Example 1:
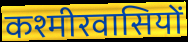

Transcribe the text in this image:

कश्मीरवासियों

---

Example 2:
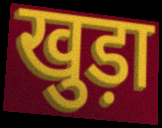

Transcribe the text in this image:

खुड़ा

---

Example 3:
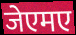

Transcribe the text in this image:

जेएमए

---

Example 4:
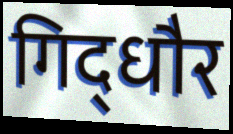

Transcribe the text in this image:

गिद्धौर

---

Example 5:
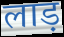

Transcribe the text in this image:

लाड़